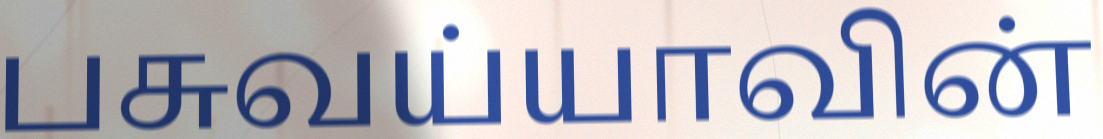
பசுவய்யாவின்